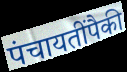
पंचायतींपैकी